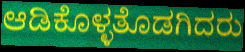
ಆಡಿಕೊಳ್ಳತೊಡಗಿದರು